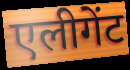
एलीगेंट